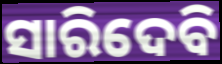
ସାରିଦେବି